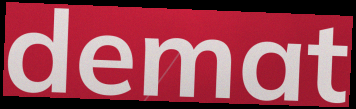
demat